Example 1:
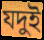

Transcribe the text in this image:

যদুই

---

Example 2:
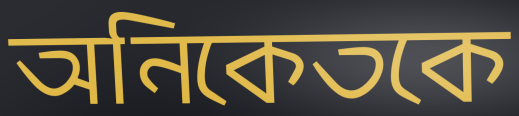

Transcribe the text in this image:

অনিকেতকে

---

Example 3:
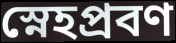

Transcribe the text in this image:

স্নেহপ্রবণ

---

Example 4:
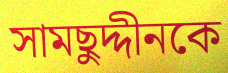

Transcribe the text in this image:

সামছুদ্দীনকে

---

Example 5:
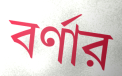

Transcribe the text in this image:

বর্ণার